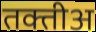
तक्तीअ